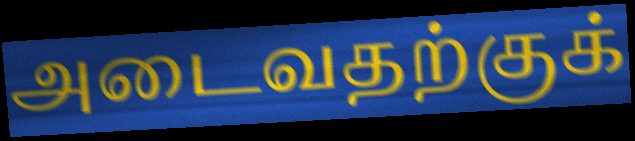
அடைவதற்குக்